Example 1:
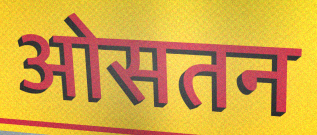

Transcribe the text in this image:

ओसतन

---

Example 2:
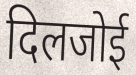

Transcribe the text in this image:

दिलजोई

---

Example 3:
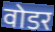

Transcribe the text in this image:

वोडर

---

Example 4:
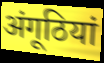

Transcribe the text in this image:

अंगूठियां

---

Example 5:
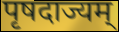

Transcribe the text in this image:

पृषदाज्यम्